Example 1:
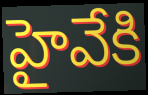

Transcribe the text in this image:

హైవేకి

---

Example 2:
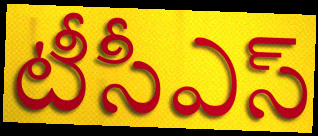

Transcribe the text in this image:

టీసీఎస్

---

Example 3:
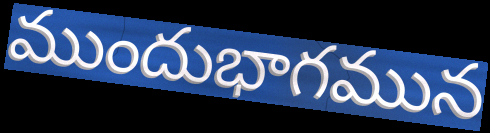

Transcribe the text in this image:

ముందుభాగమున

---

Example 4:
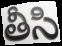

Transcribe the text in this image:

తీసి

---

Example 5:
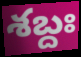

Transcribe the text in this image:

శబ్దః